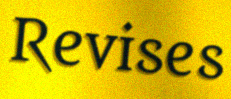
Revises